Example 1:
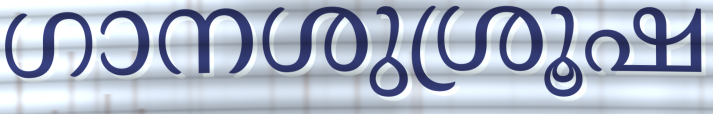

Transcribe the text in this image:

ഗാനശുശ്രൂഷ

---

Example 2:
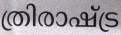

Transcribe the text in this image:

ത്രിരാഷ്ട്ര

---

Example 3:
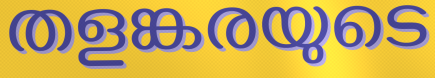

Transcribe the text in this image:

തളങ്കരയുടെ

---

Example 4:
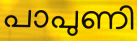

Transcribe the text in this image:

പാപുണി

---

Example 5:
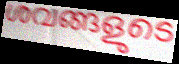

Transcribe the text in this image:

ശവങ്ങളുടെ